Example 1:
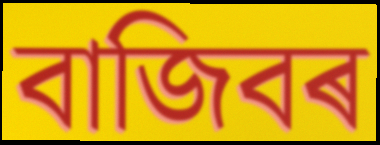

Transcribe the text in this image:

বাজিবৰ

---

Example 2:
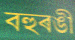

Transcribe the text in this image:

বহুৰঙী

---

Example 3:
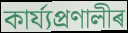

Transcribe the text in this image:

কাৰ্য্যপ্ৰণালীৰ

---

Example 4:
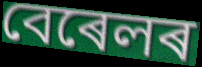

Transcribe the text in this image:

বেৰেলৰ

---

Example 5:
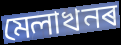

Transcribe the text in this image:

মেলাখনৰ